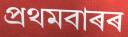
প্ৰথমবাৰৰ